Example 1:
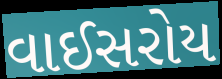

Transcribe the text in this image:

વાઈસરોય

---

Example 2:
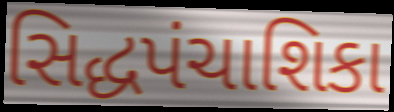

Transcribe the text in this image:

સિદ્ધપંચાશિકા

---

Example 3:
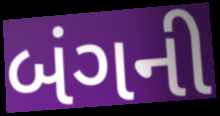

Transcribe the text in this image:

બંગની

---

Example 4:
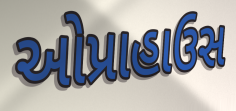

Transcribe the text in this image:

ઓપ્રાહાઉસ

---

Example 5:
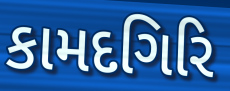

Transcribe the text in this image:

કામદગિરિ